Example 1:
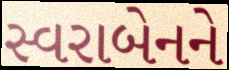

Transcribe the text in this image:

સ્વરાબેનને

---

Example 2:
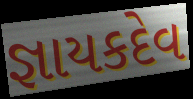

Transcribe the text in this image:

જ્ઞાયકદેવ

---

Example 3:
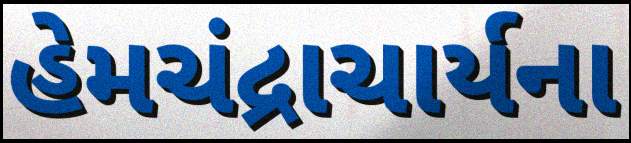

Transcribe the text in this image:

હેમચંદ્રાચાર્યના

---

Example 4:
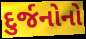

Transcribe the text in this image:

દુર્જનોનો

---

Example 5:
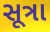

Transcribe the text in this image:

સૂત્રા